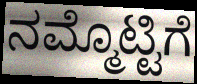
ನಮ್ಮೊಟ್ಟಿಗೆ